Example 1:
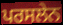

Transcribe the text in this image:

ਪਰਸਲੇਨ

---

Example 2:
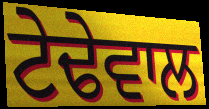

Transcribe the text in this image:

ਟੇਢੇਵਾਲ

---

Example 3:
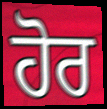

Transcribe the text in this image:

ਹੋਰ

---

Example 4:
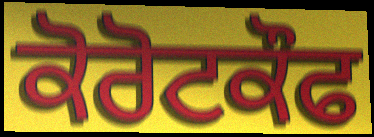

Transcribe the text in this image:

ਕੋਰੋਟਕੌਫ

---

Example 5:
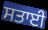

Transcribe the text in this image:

ਸਤਾਈ